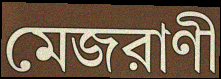
মেজরাণী